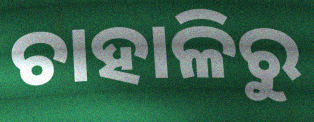
ଚାହାଳିରୁ